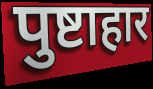
पुष्टाहार